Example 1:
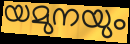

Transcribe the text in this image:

യമുനയും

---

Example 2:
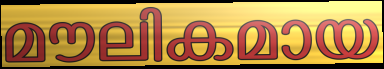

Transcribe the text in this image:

മൗലികമായ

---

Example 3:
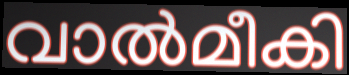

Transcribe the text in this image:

വാൽമീകി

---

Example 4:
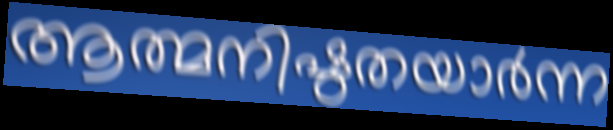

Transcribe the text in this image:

ആത്മനിഷ്ഠതയാർന്ന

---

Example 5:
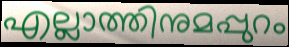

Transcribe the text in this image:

എല്ലാത്തിനുമപ്പുറം